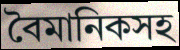
বৈমানিকসহ